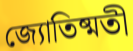
জ্যোতিষ্মতী